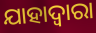
ଯାହାଦ୍ୱାରା